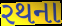
રથના